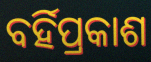
ବର୍ହିପ୍ରକାଶ